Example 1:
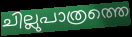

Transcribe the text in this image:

ചില്ലുപാത്രത്തെ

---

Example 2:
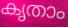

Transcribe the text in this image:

കൃതാം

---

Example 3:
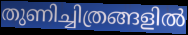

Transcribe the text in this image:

തുണിച്ചിത്രങ്ങളിൽ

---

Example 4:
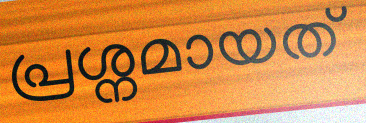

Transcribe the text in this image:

പ്രശ്നമായത്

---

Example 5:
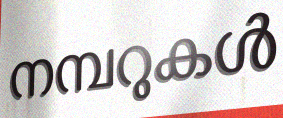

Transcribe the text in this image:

നമ്പറുകൾ